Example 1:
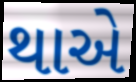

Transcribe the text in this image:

થાએ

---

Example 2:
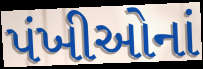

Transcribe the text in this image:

પંખીઓનાં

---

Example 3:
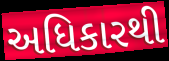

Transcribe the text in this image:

અધિકારથી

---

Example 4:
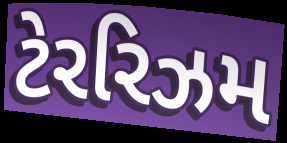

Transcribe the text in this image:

ટેરરિઝમ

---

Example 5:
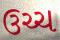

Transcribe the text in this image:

ઉચ્ચ